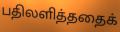
பதிலளித்ததைக்